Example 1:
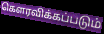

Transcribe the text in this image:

கௌரவிக்கப்படும்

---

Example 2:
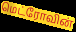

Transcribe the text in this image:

மெட்ரோவின்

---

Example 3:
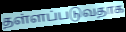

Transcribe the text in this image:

தள்ளப்படுவதாக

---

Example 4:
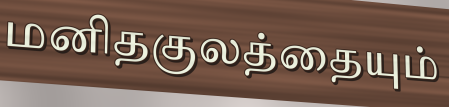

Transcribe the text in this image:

மனிதகுலத்தையும்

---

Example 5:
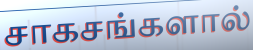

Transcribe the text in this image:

சாகசங்களால்